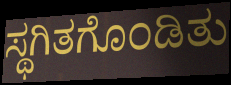
ಸ್ಥಗಿತಗೊಂಡಿತು